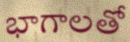
భాగాలతో